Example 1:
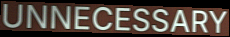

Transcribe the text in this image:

UNNECESSARY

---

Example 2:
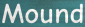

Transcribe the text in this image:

Mound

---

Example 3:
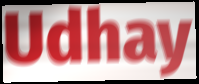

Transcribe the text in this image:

Udhay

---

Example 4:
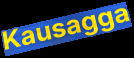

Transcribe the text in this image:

Kausagga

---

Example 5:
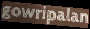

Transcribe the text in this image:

gowripalan